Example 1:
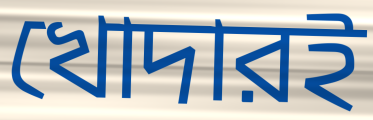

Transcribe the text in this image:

খোদারই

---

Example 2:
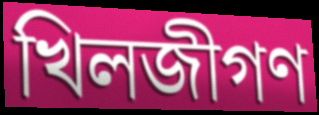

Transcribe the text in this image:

খিলজীগণ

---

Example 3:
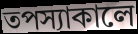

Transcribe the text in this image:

তপস্যাকালে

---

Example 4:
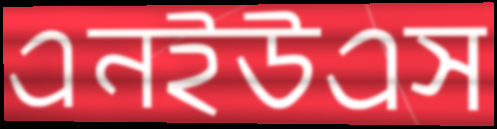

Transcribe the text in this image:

এনইউএস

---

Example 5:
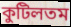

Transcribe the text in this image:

কুটিলতম